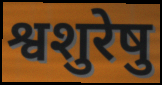
श्वशुरेषु